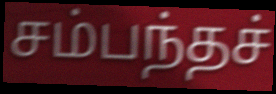
சம்பந்தச்